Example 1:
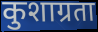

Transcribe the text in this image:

कुशाग्रता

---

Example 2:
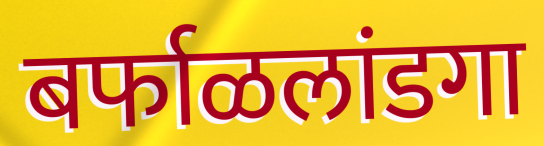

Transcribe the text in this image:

बर्फाळलांडगा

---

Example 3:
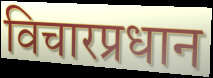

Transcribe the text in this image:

विचारप्रधान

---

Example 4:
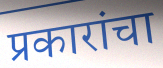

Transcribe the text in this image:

प्रकारांचा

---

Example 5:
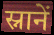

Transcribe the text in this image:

स्नानें